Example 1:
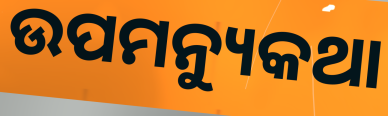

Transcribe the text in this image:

ଉପମନ୍ୟୁକଥା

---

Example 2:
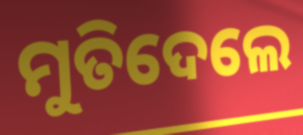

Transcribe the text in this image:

ମୁତିଦେଲେ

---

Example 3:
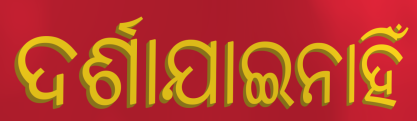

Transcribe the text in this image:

ଦର୍ଶାଯାଇନାହିଁ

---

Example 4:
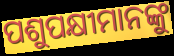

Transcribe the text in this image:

ପଶୁପକ୍ଷୀମାନଙ୍କୁ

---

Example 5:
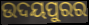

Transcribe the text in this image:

ଉଦୟପୁରର